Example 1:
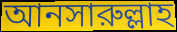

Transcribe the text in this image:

আনসারুল্লাহ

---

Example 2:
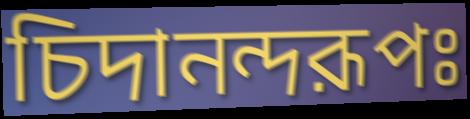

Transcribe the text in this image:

চিদানন্দরূপঃ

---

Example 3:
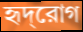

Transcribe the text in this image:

হৃদ্‌রোগ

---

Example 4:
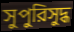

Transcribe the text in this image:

সুপুরিসুদ্ধ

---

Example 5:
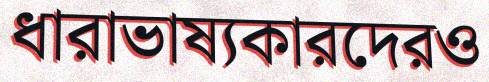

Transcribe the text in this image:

ধারাভাষ্যকারদেরও